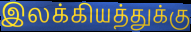
இலக்கியத்துக்கு